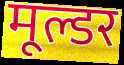
मूल्डर